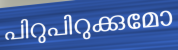
പിറുപിറുക്കുമോ